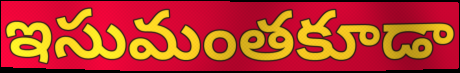
ఇసుమంతకూడా